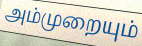
அம்முறையும்